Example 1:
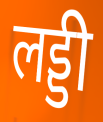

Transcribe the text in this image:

लड्डी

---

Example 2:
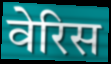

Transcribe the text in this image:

वेरिस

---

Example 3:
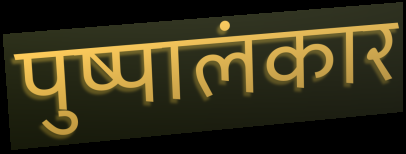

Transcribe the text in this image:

पुष्पालंकार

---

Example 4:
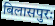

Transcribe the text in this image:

बिलासपुरः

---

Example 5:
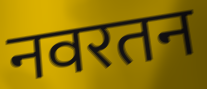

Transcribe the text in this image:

नवरतन